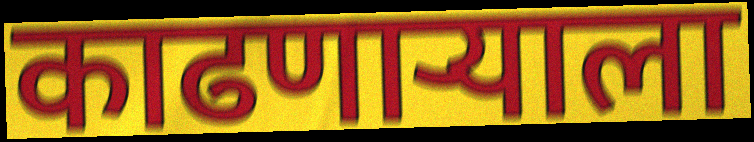
काढणार्‍याला